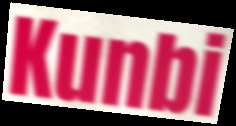
Kunbi